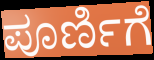
ಪೂರ್ಣಿಗೆ